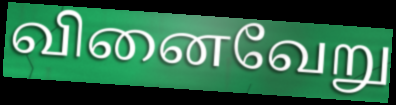
வினைவேறு